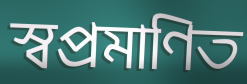
স্বপ্রমাণিত